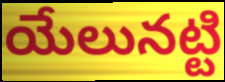
యేలునట్టి